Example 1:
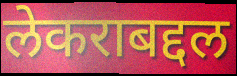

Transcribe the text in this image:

लेकराबद्दल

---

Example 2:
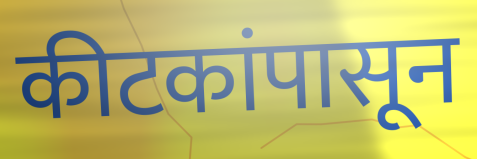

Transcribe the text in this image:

कीटकांपासून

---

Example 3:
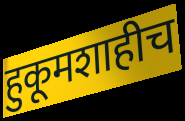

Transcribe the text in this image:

हुकूमशाहीच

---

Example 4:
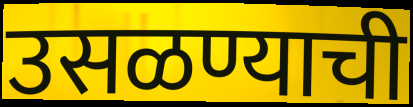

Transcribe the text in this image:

उसळण्याची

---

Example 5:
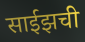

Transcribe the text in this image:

साईझची